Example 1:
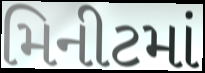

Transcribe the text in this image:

મિનીટમાં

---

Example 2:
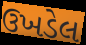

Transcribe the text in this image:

ઉખડેલ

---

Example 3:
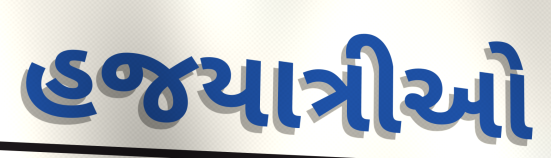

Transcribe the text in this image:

હજયાત્રીઓ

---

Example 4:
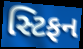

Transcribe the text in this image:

સ્ટિફન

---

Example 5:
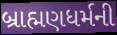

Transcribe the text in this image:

બ્રાહ્મણધર્મની